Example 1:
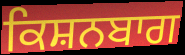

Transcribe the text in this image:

ਕਿਸ਼ਨਬਾਗ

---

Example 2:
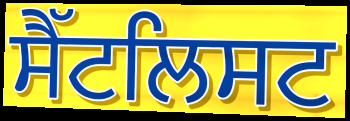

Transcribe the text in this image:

ਸੈੱਟਲਿਸਟ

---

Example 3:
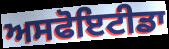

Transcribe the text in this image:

ਅਸਫੋਇਟੀਡਾ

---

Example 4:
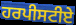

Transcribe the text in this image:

ਹਰਪੀਸਟੀਏ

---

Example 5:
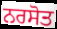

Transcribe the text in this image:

ਨਰਸੋਤ